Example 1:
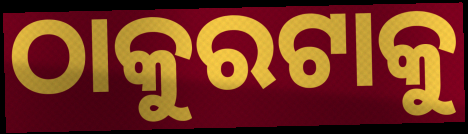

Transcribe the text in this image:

ଠାକୁରଟାକୁ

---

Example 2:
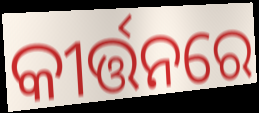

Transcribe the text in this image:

କୀର୍ତ୍ତନରେ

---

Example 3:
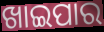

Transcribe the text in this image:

ଖାଇପାର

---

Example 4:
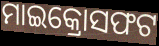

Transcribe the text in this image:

ମାଇକ୍ରୋସଫଟ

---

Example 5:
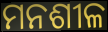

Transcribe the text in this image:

ମନଶୀଳ